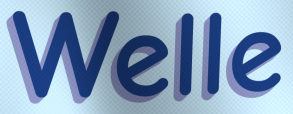
Welle